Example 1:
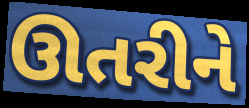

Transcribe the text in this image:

ઊતરીને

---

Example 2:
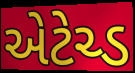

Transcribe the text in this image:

એટેચ્ડ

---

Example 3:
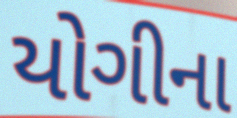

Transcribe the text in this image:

યોગીના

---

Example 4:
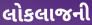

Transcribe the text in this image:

લોકલાજની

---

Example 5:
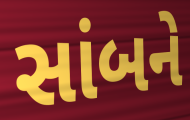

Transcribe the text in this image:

સાંબને